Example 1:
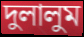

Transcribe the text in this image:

দুলালুম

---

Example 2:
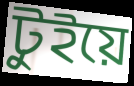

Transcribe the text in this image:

টুইয়ে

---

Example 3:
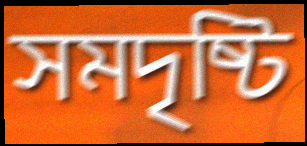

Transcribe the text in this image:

সমদৃষ্টি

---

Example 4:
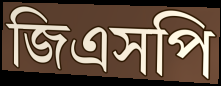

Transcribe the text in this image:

জিএসপি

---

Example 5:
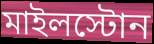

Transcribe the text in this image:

মাইলস্টোন